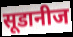
सूडानीज